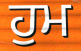
ਹੁਮ